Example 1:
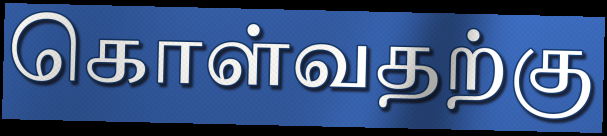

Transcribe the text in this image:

கொள்வதற்கு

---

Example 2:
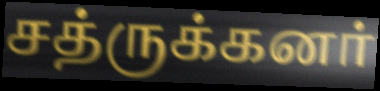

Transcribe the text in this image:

சத்ருக்கனர்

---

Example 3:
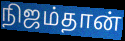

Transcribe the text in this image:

நிஜம்தான்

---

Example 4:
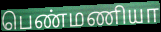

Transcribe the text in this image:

பெண்மணியா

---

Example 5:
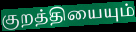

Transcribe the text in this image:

குறத்தியையும்